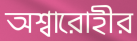
অশ্বারোহীর